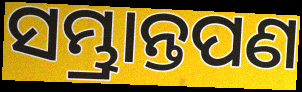
ସମ୍ଭ୍ରାନ୍ତପଣ